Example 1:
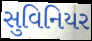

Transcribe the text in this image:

સુવિનિયર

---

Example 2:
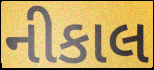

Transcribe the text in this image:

નીકાલ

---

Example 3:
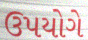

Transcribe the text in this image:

ઉપયોગે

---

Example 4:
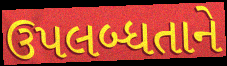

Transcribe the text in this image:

ઉપલબ્ધતાને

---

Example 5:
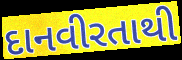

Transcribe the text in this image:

દાનવીરતાથી